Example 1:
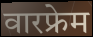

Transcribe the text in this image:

वारफ्रेम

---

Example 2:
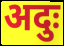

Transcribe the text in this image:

अदुः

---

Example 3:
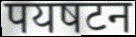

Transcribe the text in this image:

पयषटन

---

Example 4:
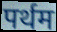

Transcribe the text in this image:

पर्थम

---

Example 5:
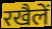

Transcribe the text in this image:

रखैलें